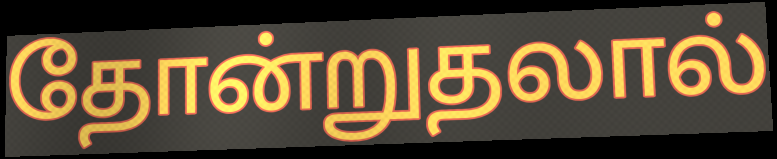
தோன்றுதலால்